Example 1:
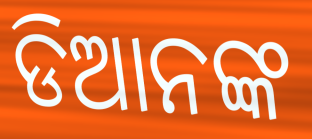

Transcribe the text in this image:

ଡିଆନଙ୍କ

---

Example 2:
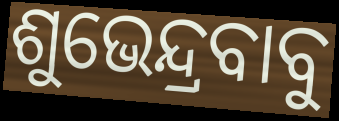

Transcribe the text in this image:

ଶୁଭେନ୍ଦ୍ରବାବୁ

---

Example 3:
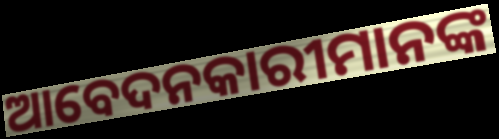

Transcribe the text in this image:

ଆବେଦନକାରୀମାନଙ୍କ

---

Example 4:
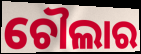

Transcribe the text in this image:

ଚୌଲାର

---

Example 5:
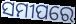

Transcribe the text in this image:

ସମୀପରେ